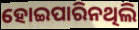
ହୋଇପାରିନଥିଲି